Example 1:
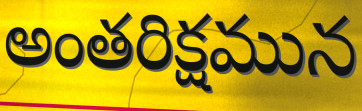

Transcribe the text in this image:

అంతరిక్షమున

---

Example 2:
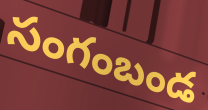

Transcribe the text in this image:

సంగంబండ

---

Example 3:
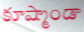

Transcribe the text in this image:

కూష్మాండా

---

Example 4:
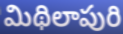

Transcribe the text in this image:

మిథిలాపురి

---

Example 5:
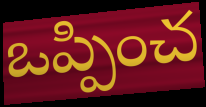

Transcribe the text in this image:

ఒప్పించ